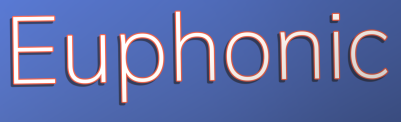
Euphonic